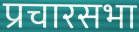
प्रचारसभा